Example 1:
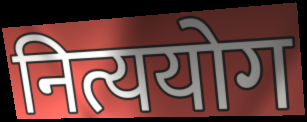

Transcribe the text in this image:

नित्ययोग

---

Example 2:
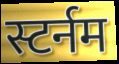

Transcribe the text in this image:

स्टर्नम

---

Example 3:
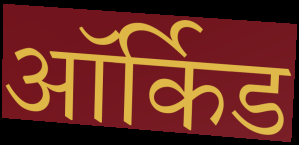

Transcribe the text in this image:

ऑर्किड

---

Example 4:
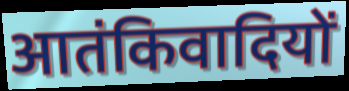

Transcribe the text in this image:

आतंकिवादियों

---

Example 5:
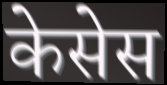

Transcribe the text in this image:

केसेस